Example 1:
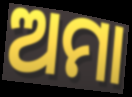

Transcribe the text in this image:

ଅମା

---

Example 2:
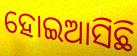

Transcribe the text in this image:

ହୋଇଆସିଛି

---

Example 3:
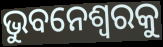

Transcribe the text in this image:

ଭୁବନେଶ୍ୱରକୁ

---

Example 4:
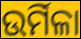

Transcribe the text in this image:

ଉର୍ମିଳା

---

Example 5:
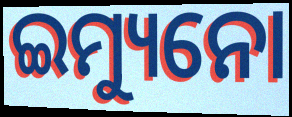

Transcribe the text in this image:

ଇମ୍ୟୁନୋ